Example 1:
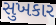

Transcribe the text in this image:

સુખકાર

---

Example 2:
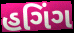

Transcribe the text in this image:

હગિંગ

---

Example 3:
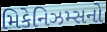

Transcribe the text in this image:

મિકેનિઝમ્સનો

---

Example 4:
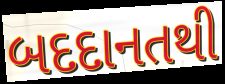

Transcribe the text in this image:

બદદાનતથી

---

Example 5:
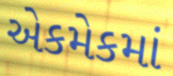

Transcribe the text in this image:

એકમેકમાં